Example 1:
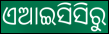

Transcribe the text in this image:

ଏଆଇସିସିରୁ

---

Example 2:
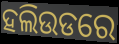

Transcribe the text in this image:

ହଲିଉଡରେ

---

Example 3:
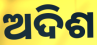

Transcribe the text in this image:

ଅଦିଶ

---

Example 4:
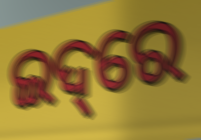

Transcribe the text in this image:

ଇଦ୍‌ରେ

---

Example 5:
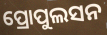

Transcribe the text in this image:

ପ୍ରୋପୁଲସନ